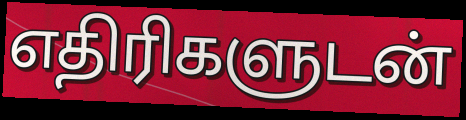
எதிரிகளுடன்